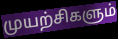
முயற்சிகளும்